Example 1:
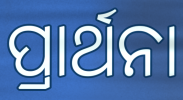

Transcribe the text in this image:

ପ୍ରାର୍ଥନା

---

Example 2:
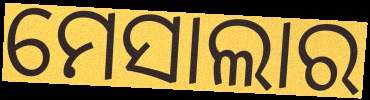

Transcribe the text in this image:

ମେସାଲାର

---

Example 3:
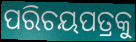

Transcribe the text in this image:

ପରିଚୟପତ୍ରକୁ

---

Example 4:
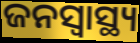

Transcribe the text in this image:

ଜନସ୍ବାସ୍ଥ୍ୟ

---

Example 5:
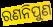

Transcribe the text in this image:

ରଣନିପୁଣ